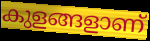
കുളങ്ങളാണ്